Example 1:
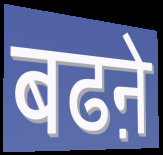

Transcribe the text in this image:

बढऩे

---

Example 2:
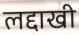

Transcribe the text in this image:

लद्दाखी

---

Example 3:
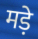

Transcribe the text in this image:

मड़े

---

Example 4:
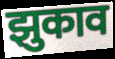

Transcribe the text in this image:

झुकाव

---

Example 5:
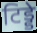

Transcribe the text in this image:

टिड्डे